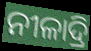
ନୀଳାଦ୍ରି